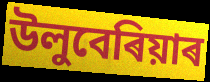
উলুবেৰিয়াৰ